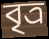
বৃত্ৰ